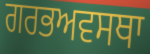
ਗਰਭਅਵਸਥਾ